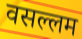
वसल्लम